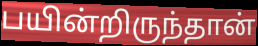
பயின்றிருந்தான்